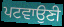
ਪਟਵਾਉਣੀ